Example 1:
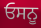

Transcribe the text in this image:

ਓਸਨੂ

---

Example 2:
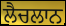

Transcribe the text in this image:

ਲੈਚਲਾਨ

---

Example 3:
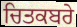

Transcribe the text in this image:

ਚਿਤਕਬਰੇ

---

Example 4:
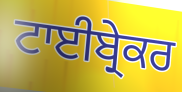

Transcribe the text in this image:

ਟਾਈਬ੍ਰੇਕਰ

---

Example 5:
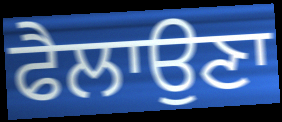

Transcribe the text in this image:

ਫੈਲਾਉਣਾ